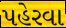
પહેરવા